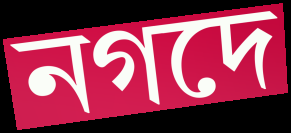
নগদে